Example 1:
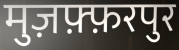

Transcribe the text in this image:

मुज़फ़्फ़रपुर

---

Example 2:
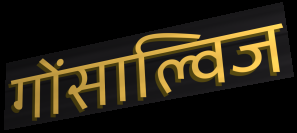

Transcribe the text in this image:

गोंसाल्विज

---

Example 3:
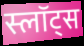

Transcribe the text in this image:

स्लॉट्स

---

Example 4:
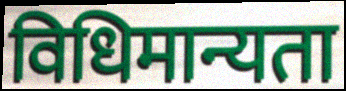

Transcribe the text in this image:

विधिमान्यता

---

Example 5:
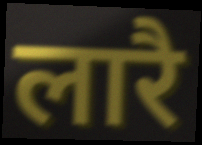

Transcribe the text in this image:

लारै